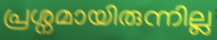
പ്രശ്നമായിരുന്നില്ല